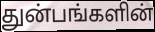
துன்பங்களின்